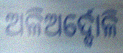
ଅଳିଅର୍ଦ୍ଦୋଳି